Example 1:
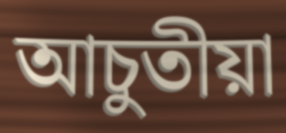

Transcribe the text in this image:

আচুতীয়া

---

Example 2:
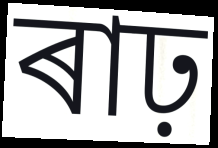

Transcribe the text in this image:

ৰাঢ়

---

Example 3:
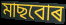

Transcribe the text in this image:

মাছবোৰ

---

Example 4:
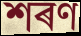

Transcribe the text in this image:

শৰণ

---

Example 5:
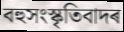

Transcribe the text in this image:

বহুসংস্কৃতিবাদৰ